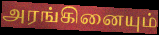
அரங்கினையும்